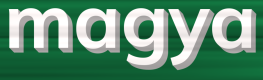
magya